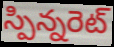
స్పిన్నరెట్